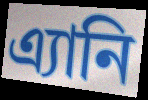
এ্যানি